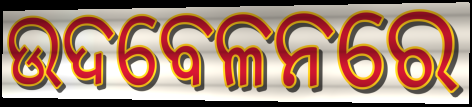
ଉଦବେଳନରେ